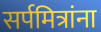
सर्पमित्रांना